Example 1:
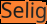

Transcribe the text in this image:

Selig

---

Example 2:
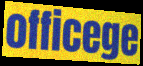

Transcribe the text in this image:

officege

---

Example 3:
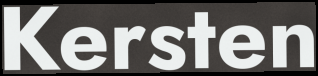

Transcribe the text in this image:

Kersten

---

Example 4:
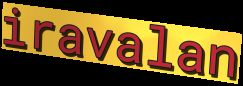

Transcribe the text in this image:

iravalan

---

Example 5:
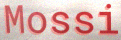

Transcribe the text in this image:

Mossi